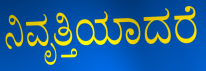
ನಿವೃತ್ತಿಯಾದರೆ